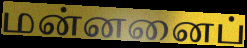
மன்னனைப்